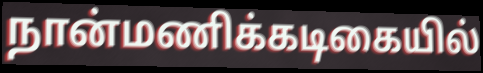
நான்மணிக்கடிகையில்